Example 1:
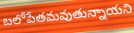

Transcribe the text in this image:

బలోపేతమవుతున్నాయని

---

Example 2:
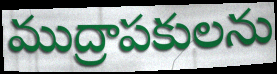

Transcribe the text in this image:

ముద్రాపకులను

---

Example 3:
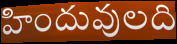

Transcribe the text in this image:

హిందువులది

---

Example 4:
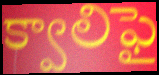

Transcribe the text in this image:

క్వాలిఫై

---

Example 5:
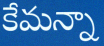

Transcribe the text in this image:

కేమన్నా